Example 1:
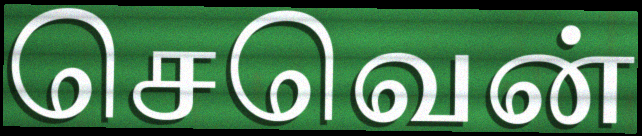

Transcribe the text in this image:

செவென்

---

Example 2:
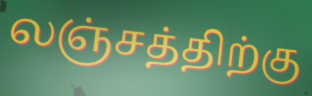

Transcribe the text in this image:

லஞ்சத்திற்கு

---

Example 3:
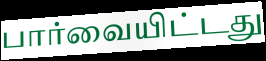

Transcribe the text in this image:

பார்வையிட்டது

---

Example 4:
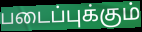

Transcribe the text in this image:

படைப்புக்கும்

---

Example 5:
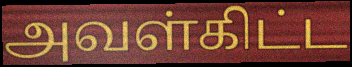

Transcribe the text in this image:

அவள்கிட்ட